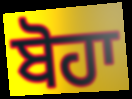
ਬੋਹਾ